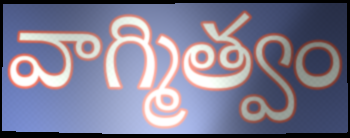
వాగ్మిత్వం